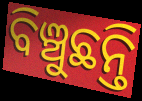
ବିଞ୍ଚୁଛନ୍ତି